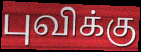
புவிக்கு